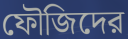
ফৌজিদের